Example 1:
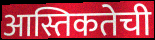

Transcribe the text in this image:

आस्तिकतेची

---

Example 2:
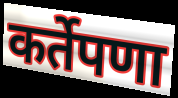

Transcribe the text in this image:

कर्तेपणा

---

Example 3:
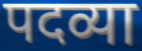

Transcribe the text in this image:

पदव्या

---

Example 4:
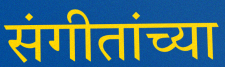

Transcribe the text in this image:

संगीतांच्या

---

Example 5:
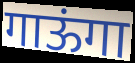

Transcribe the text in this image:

गाऊंगा